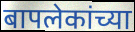
बापलेकांच्या